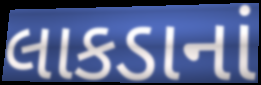
લાકડાનાં